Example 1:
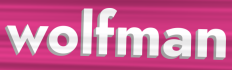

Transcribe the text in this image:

wolfman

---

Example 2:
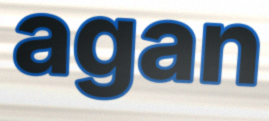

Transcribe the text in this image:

agan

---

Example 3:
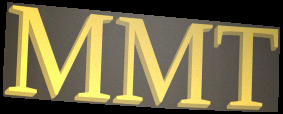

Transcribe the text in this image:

MMT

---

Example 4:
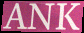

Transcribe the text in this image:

ANK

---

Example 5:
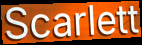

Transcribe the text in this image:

Scarlett